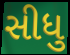
સીધુ